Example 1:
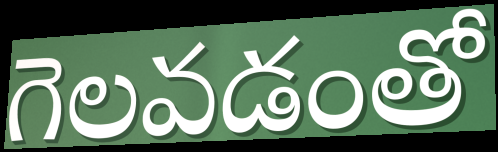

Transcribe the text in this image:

గెలవడంతో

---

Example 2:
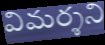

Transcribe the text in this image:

విమర్శని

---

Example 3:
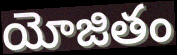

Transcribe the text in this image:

యోజితం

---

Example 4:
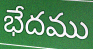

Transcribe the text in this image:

భేదము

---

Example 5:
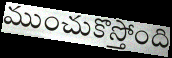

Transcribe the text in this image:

ముంచుకొస్తోంది